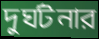
দুর্ঘটনার